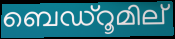
ബെഡ്റൂമില്